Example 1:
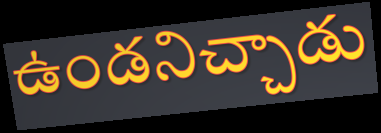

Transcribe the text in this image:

ఉండనిచ్చాడు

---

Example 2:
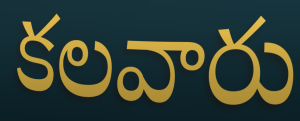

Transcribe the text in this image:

కలవారు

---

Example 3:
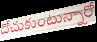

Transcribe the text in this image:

దోచుకుంటున్నారో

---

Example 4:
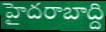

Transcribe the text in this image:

హైదరాబాద్ది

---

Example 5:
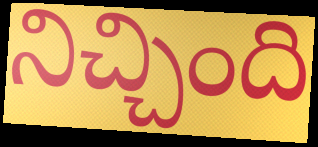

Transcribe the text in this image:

నిచ్చింది